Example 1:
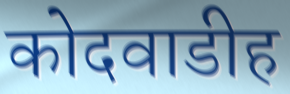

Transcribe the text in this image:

कोदवाडीह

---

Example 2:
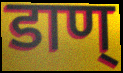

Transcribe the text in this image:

डाण्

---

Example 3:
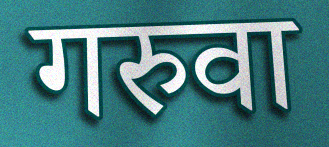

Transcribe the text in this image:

गरुवा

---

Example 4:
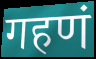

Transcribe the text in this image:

गहणं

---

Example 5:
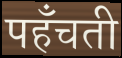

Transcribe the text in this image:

पहँचती